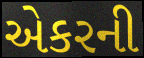
એકરની